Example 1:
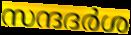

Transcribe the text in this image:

സന്ദദർശ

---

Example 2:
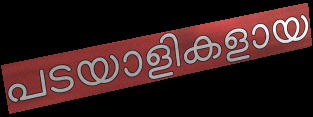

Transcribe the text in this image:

പടയാളികളായ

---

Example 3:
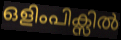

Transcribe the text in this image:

ഒളിംപിക്സിൽ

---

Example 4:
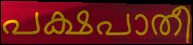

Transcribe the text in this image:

പക്ഷപാതീ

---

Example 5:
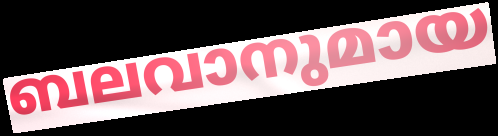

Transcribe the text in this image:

ബലവാനുമായ